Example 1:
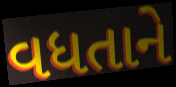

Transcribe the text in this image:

વધતાને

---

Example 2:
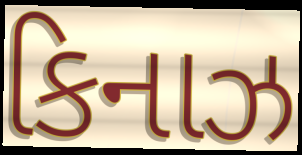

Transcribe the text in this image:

કિનાઝ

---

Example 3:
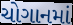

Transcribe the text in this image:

ચોગાનમાં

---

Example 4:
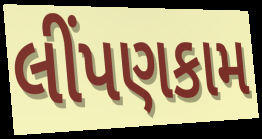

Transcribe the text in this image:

લીંપણકામ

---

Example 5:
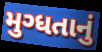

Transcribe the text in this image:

મુગ્ધતાનું